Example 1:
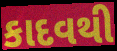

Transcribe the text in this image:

કાદવથી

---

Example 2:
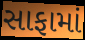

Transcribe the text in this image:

સાફામાં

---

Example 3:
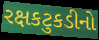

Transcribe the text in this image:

રક્ષકટુકડીનો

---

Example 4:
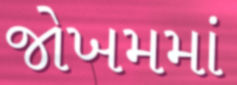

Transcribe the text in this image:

જોખમમાં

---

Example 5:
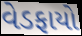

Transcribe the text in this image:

વેડફાયો